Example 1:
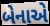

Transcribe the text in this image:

બેનાએ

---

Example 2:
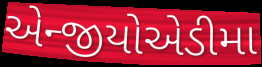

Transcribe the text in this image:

એન્જીયોએડીમા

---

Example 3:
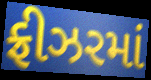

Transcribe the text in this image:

ફ્રીઝરમાં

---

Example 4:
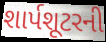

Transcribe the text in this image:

શાર્પશૂટરની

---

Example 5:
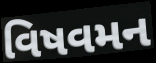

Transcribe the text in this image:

વિષવમન